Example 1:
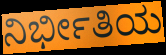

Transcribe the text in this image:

ನಿರ್ಭೀತಿಯ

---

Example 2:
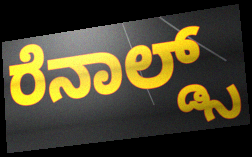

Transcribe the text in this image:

ರೆನಾಲ್ಡ್ಸ್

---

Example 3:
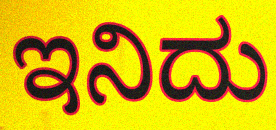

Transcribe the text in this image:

ಇನಿದು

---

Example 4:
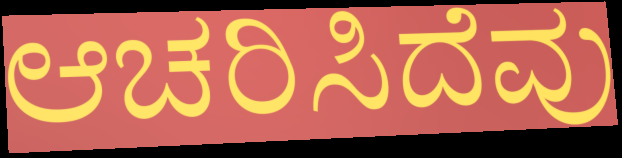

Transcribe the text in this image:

ಆಚರಿಸಿದೆವು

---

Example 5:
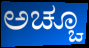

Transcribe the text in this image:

ಅಚ್ಚೂ